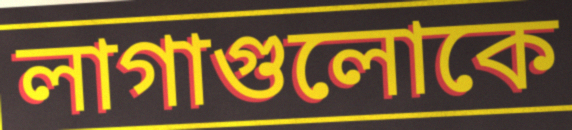
লাগাগুলোকে